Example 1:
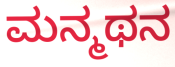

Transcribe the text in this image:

ಮನ್ಮಥನ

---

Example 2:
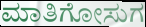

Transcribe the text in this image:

ಮಾತಿಗೋಸುಗ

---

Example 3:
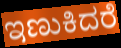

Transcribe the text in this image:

ಇಣುಕಿದರೆ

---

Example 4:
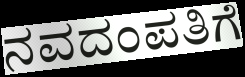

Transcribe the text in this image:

ನವದಂಪತಿಗೆ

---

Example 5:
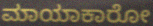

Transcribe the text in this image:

ಮಾಯಾಕಾರೋ